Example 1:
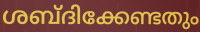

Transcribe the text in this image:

ശബ്ദിക്കേണ്ടതും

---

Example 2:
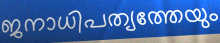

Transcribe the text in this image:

ജനാധിപത്യത്തേയും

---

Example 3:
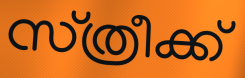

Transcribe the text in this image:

സ്‌ത്രീക്ക്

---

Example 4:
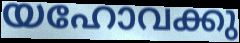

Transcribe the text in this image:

യഹോവക്കു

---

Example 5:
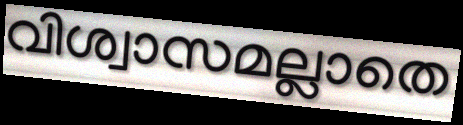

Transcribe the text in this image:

വിശ്വാസമല്ലാതെ